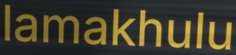
lamakhulu